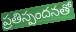
ప్రతిస్పందనతో